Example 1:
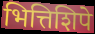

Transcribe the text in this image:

भित्तिशिपे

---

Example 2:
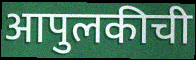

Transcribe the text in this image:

आपुलकीची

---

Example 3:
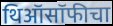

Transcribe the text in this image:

थिऑसॉफीचा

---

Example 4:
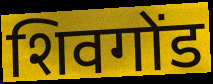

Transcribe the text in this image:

शिवगोंड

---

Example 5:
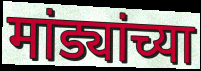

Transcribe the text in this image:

मांड्यांच्या